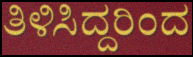
ತಿಳಿಸಿದ್ದರಿಂದ